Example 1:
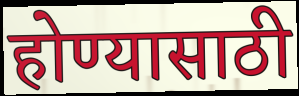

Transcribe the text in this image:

होण्यासाठी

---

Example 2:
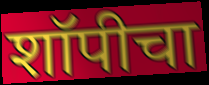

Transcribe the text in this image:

शॉपीचा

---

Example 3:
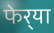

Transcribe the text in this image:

फेर्‍या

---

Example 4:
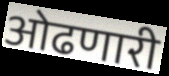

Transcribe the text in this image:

ओढणारी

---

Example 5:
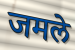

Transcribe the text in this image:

जमले